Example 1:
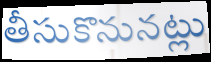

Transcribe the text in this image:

తీసుకొనునట్లు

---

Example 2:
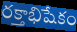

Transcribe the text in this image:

రక్తాభిషేకం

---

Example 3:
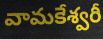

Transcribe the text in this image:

వామకేశ్వరీ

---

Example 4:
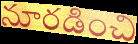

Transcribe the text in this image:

నూరడించి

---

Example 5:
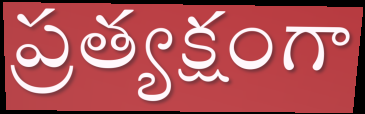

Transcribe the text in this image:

ప్రత్యక్షంగా